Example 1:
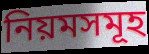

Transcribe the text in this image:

নিয়মসমূহ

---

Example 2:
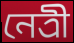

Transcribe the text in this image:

নেত্ৰী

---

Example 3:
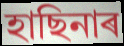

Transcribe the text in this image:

হাছিনাৰ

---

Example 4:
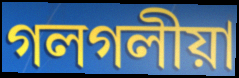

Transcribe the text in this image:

গলগলীয়া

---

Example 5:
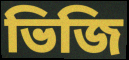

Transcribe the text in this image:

ভিজি